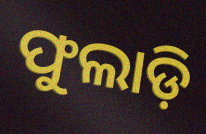
ଫୁଲାଡ଼ି